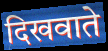
दिखवाते